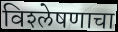
विश्लेषणाचा